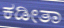
ಕಡೀತಾ